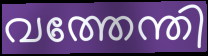
വത്തേന്തി